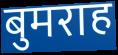
बुमराह